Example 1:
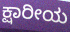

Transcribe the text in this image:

ಕ್ಷಾರೀಯ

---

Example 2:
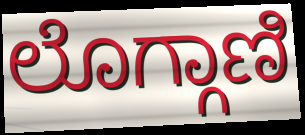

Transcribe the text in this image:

ಲೊಗ್ಗಾಣಿ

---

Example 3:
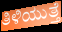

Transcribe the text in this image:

ತಿಳಿಯುತ್ತೆ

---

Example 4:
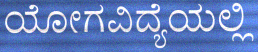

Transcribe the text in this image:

ಯೋಗವಿದ್ಯೆಯಲ್ಲಿ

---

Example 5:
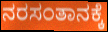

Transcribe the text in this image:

ನರಸಂತಾನಕ್ಕೆ